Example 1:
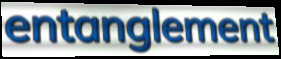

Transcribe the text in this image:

entanglement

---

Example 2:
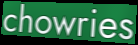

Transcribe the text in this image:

chowries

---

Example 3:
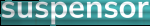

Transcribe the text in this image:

suspensor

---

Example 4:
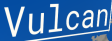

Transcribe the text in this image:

Vulcan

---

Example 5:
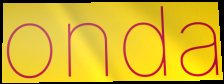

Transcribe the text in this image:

onda